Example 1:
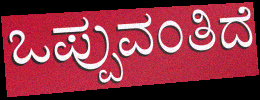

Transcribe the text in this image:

ಒಪ್ಪುವಂತಿದೆ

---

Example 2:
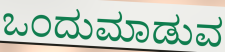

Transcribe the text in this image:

ಒಂದುಮಾಡುವ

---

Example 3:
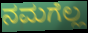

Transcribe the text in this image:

ನಮಗೆಲ್ಲ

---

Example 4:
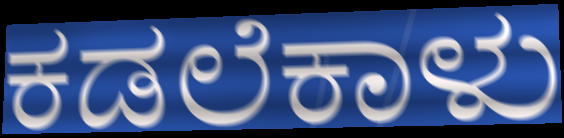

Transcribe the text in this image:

ಕಡಲೆಕಾಳು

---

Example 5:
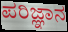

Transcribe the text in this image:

ಪರಿಜ್ಞಾನ